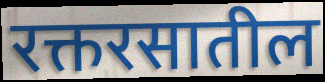
रक्तरसातील